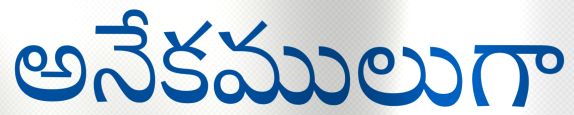
అనేకములుగా